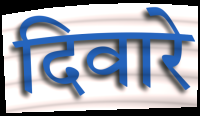
दिवारे